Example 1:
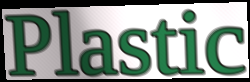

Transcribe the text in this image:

Plastic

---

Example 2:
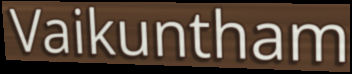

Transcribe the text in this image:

Vaikuntham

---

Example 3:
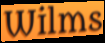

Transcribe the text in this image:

Wilms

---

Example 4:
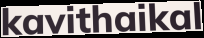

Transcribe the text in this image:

kavithaikal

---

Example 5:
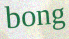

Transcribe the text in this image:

bong